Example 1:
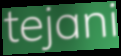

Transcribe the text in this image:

tejani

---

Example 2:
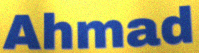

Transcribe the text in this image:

Ahmad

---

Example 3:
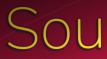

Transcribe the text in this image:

Sou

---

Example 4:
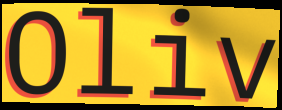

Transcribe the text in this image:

Oliv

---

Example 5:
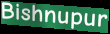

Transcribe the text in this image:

Bishnupur